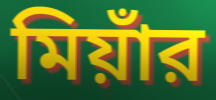
মিয়াঁর